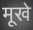
मूखे